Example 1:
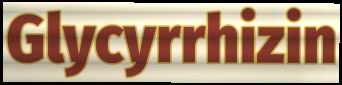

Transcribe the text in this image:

Glycyrrhizin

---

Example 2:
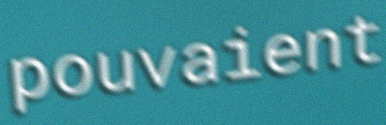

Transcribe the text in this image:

pouvaient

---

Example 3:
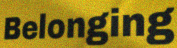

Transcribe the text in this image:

Belonging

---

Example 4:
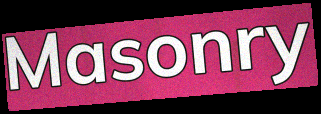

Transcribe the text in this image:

Masonry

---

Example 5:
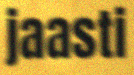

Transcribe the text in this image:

jaasti